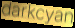
darkcyan